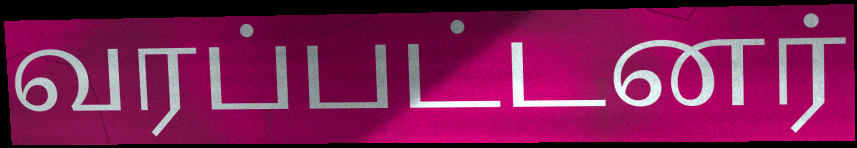
வரப்பட்டனர்